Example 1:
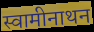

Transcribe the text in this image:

स्वामीनाथन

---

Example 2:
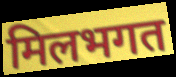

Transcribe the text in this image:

मिलभगत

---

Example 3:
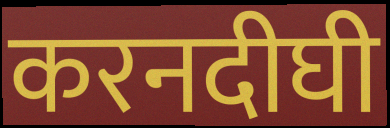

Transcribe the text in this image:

करनदीघी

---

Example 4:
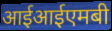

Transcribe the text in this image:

आईआईएमबी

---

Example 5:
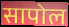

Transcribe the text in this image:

सापोल